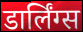
डार्लिंग्स